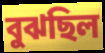
বুঝছিল